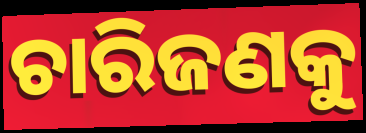
ଚାରିଜଣକୁ